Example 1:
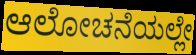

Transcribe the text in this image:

ಆಲೋಚನೆಯಲ್ಲೇ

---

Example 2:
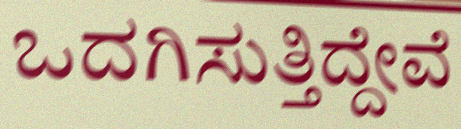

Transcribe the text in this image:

ಒದಗಿಸುತ್ತಿದ್ದೇವೆ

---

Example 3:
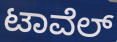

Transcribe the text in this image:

ಟಾವೆಲ್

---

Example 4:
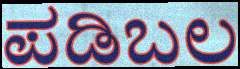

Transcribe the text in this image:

ಪಡಿಬಲ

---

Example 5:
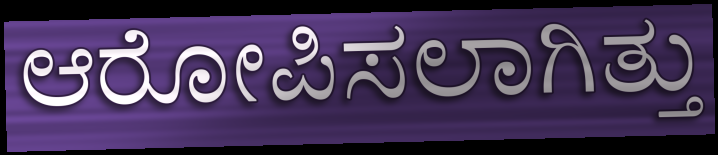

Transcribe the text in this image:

ಆರೋಪಿಸಲಾಗಿತ್ತು